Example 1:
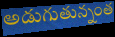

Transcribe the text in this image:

అడుగుతున్నంత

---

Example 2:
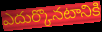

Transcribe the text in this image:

ఎదుర్కొనటానికి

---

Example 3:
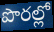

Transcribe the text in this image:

పొరల్లో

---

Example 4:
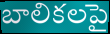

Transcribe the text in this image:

బాలికలపై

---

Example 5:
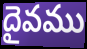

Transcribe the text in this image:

దైవము